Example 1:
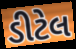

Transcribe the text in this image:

ડીટેલ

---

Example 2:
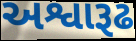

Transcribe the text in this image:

અશ્વારૂઢ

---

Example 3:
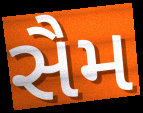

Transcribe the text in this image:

સૈમ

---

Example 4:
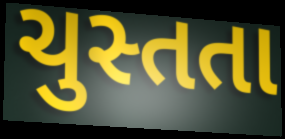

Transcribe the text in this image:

ચુસ્તતા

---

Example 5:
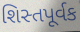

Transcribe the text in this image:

શિસ્તપૂર્વક